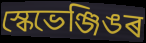
স্কেভেঞ্জিঙৰ